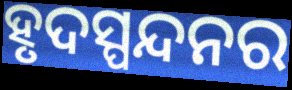
ହୃଦସ୍ପନ୍ଦନର